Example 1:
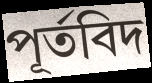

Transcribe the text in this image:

পূর্তবিদ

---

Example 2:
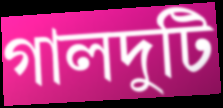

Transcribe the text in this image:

গালদুটি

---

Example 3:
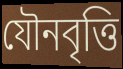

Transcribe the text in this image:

যৌনবৃত্তি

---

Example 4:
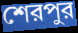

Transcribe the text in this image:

শেরপুর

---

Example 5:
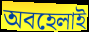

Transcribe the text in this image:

অবহেলাই